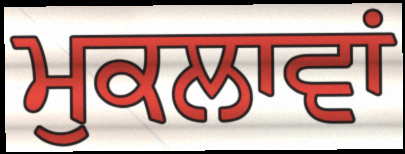
ਮੁਕਲਾਵਾਂ